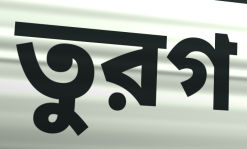
তুরগ